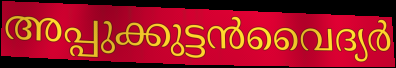
അപ്പുക്കുട്ടൻവൈദ്യർ